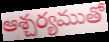
ఆశ్చర్యముతో